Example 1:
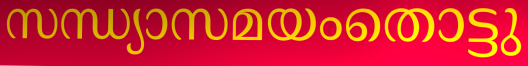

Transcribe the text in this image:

സന്ധ്യാസമയംതൊട്ടു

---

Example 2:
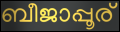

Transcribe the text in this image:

ബീജാപ്പൂര്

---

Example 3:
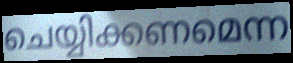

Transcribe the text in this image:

ചെയ്യിക്കണമെന്ന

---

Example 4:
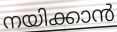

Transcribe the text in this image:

നയിക്കാൻ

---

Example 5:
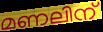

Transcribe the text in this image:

മണലിന്